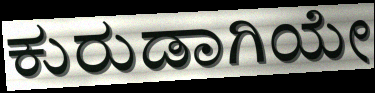
ಕುರುಡಾಗಿಯೇ